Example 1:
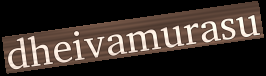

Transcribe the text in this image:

dheivamurasu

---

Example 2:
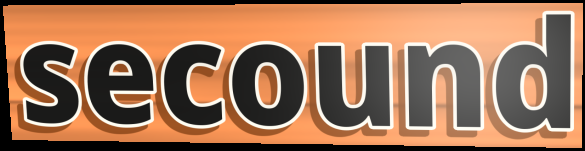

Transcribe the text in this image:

secound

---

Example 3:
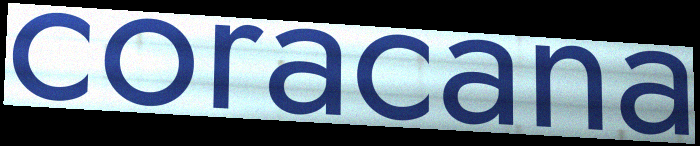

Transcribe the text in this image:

coracana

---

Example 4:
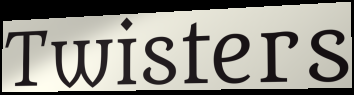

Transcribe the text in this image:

Twisters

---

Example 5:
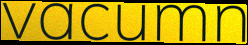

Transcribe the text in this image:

vacumn